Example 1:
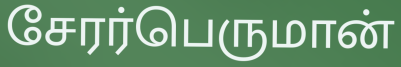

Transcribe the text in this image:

சேரர்பெருமான்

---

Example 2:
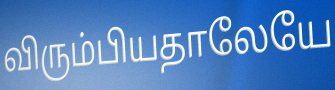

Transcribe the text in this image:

விரும்பியதாலேயே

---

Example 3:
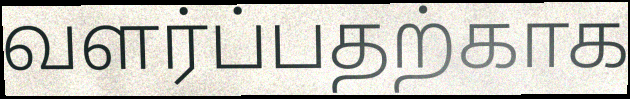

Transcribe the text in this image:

வளர்ப்பதற்காக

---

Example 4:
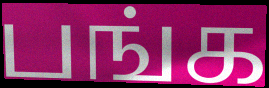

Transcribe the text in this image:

பங்க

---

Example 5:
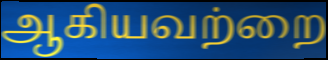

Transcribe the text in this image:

ஆகியவற்றை